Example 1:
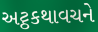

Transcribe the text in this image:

અટ્ઠકથાવચને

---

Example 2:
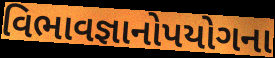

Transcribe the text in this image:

વિભાવજ્ઞાનોપયોગના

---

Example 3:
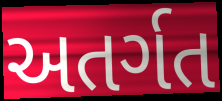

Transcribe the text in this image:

અતર્ગત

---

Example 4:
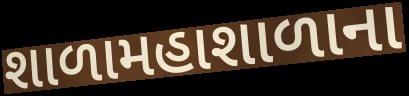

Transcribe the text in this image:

શાળામહાશાળાના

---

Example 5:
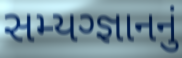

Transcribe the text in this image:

સમ્યગ્જ્ઞાનનું